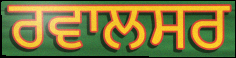
ਰਵਾਲਸਰ